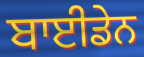
ਬਾਈਡੇਨ